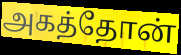
அகத்தோன்